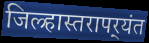
जिल्हास्तरापर्यंत